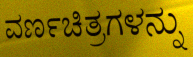
ವರ್ಣಚಿತ್ರಗಳನ್ನು